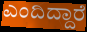
ಎಂದಿದ್ದಾರೆ